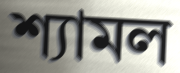
শ্যামল